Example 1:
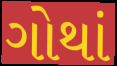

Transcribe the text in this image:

ગોથાં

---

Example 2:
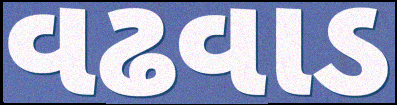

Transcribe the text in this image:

વઢવાડ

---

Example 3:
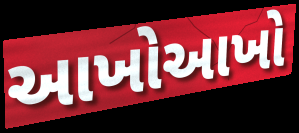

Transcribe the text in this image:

આખોઆખો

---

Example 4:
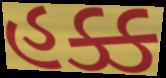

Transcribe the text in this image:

હક્ક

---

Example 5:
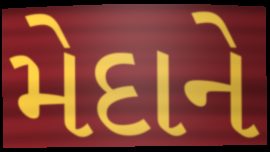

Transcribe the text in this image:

મેદાને